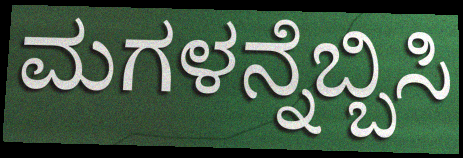
ಮಗಳನ್ನೆಬ್ಬಿಸಿ